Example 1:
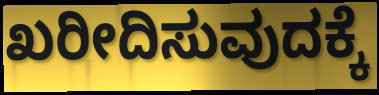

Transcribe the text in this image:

ಖರೀದಿಸುವುದಕ್ಕೆ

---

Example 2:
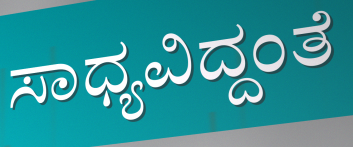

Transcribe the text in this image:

ಸಾಧ್ಯವಿದ್ದಂತೆ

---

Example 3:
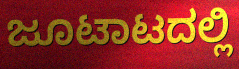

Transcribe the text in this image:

ಜೂಟಾಟದಲ್ಲಿ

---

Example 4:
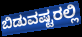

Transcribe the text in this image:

ಬಿಡುವಷ್ಟರಲ್ಲಿ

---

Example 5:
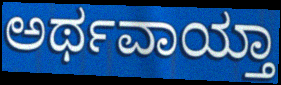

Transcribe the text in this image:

ಅರ್ಥವಾಯ್ತಾ